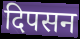
दिपसन